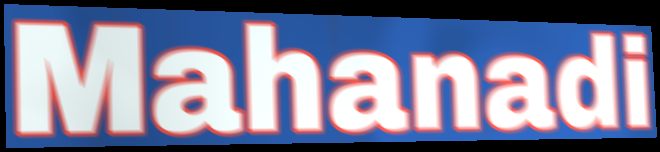
Mahanadi